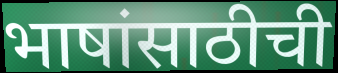
भाषांसाठीची